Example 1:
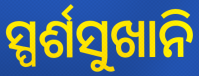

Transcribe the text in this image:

ସ୍ପର୍ଶସୁଖାନି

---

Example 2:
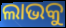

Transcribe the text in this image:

ଲାଭକୁ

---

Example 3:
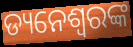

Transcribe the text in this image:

ଡ୍ୟନେଶ୍ୱରଙ୍କ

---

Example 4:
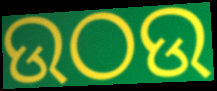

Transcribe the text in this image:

ଉଠଉ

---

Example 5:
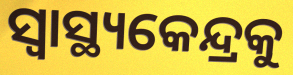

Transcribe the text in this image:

ସ୍ୱାସ୍ଥ୍ୟକେନ୍ଦ୍ରକୁ